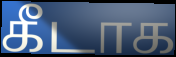
கீடாக